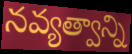
నవ్యత్వాన్ని